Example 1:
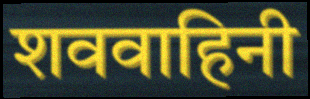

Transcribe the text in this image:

शववाहिनी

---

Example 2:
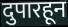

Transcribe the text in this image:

दुपारहून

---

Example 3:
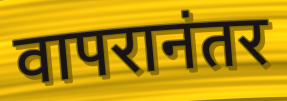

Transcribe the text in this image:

वापरानंतर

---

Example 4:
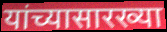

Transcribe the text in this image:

यांच्यासारख्या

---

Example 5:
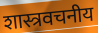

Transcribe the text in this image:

शास्त्रवचनीय